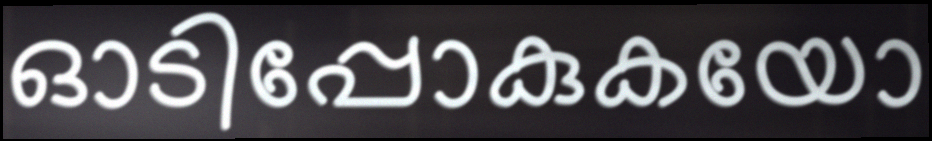
ഓടിപ്പോകുകയോ